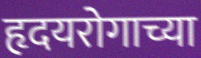
हृदयरोगाच्या